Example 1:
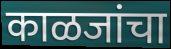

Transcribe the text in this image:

काळजांचा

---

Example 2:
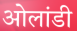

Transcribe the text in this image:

ओलांडी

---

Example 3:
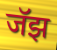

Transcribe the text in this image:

जॅझ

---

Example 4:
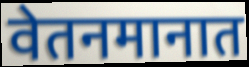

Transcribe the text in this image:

वेतनमानात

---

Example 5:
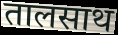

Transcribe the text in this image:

तालसाथ